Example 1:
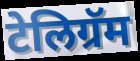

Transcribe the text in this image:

टेलिग्रॅम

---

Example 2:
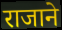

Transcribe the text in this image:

राजाने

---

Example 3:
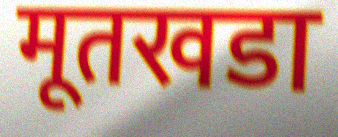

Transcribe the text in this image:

मूतखडा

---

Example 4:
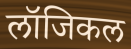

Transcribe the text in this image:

लॉजिकल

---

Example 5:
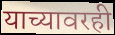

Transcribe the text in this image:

याच्यावरही